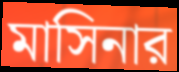
মাসিনার